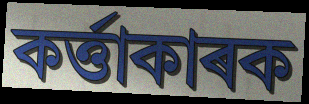
কৰ্ত্তাকাৰক